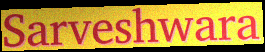
Sarveshwara